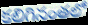
కలిగినంతలో